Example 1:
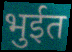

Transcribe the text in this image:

भुईत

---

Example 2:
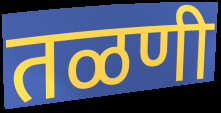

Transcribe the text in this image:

तळणी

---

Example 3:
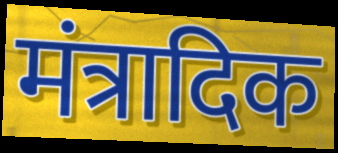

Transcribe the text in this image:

मंत्रादिक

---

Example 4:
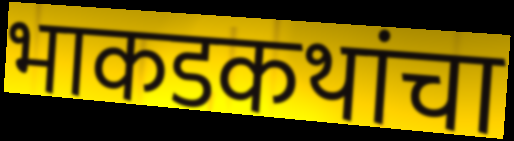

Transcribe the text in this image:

भाकडकथांचा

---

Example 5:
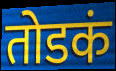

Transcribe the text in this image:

तोडकं